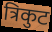
त्रिकुट